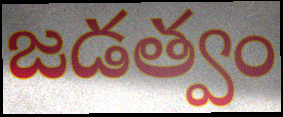
జడత్వం